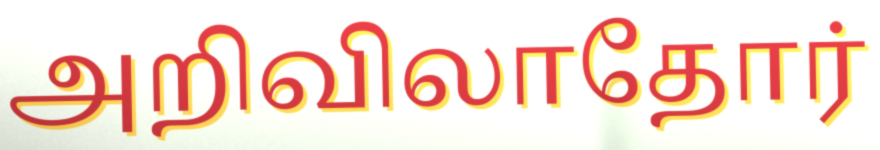
அறிவிலாதோர்